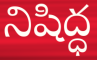
నిషిద్ధ